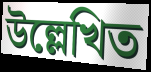
উল্লেখিত